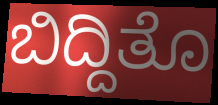
ಬಿದ್ದಿತೊ